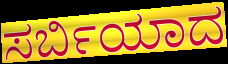
ಸರ್ಬಿಯಾದ